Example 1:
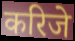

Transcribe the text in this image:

करिजे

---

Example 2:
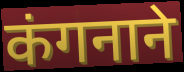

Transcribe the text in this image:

कंगनाने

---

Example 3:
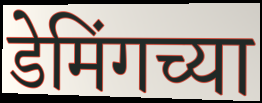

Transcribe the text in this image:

डेमिंगच्या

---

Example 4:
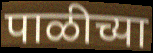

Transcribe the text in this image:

पाळीच्या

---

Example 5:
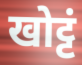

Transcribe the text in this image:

खोट्टं